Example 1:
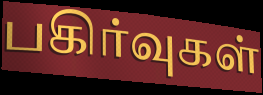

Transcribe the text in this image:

பகிர்வுகள்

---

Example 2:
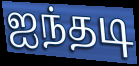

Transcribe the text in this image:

ஐந்தடி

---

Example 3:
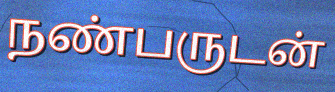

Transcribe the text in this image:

நண்பருடன்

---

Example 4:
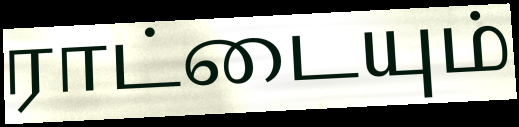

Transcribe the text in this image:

ராட்டையும்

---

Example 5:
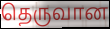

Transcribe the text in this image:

தெருவான